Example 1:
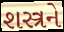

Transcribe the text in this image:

શસ્ત્રને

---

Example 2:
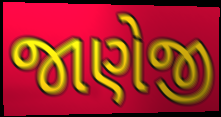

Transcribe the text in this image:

જાણેજી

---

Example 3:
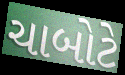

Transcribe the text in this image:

ચાબોટે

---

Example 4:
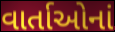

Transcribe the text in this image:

વાર્તાઓનાં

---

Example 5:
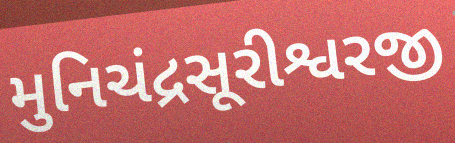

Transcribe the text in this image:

મુનિચંદ્રસૂરીશ્વરજી